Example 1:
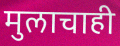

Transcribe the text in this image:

मुलाचाही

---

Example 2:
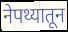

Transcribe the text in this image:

नेपथ्यातून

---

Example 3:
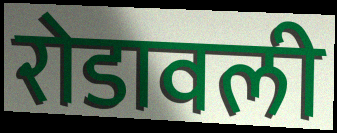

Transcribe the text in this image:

रोडावली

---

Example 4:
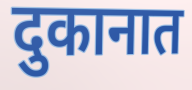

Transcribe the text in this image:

दुकानात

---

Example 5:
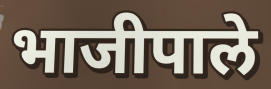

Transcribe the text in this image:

भाजीपाले